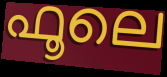
ഫൂലെ